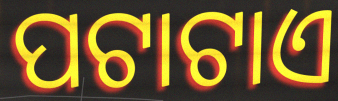
ପଟାଟାଏ